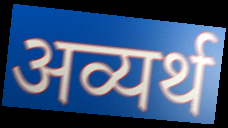
अव्यर्थ